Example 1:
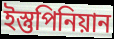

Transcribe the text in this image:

ইস্তুপিনিয়ান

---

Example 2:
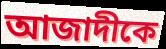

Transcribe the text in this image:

আজাদীকে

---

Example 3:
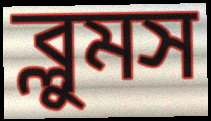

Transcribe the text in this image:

ব্লুমস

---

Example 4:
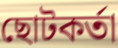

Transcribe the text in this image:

ছোটকর্তা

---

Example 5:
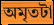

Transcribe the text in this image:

অমৃতটা